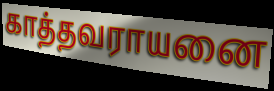
காத்தவராயனை